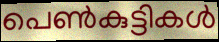
പെൺകുട്ടികൾ